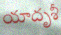
యాదృశీ